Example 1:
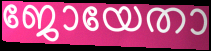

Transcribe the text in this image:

ജോയേതാ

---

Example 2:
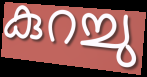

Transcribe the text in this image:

കുറച്ചു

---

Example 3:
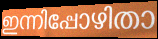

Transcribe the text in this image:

ഇന്നിപ്പോഴിതാ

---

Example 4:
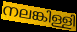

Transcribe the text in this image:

നലങ്കിള്ളി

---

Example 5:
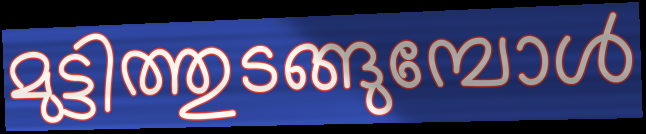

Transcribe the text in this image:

മുട്ടിത്തുടങ്ങുമ്പോൾ